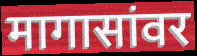
मागासांवर